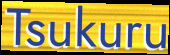
Tsukuru